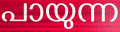
പായുന്ന